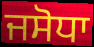
ਜਸੋਧਾ